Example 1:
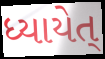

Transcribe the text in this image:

ધ્યાયેત્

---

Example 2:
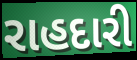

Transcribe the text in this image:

રાહદારી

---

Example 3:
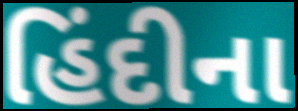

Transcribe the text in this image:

હિંદીના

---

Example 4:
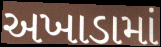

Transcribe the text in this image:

અખાડામાં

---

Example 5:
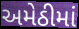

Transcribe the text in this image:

અમેઠીમાં